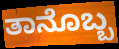
ತಾನೊಬ್ಬ